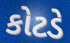
કોટડે